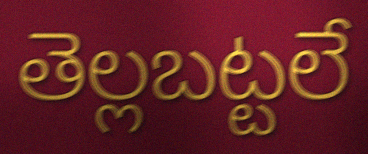
తెల్లబట్టలే